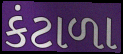
કંટાળા